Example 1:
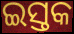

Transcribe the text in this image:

ଇସ୍ତକ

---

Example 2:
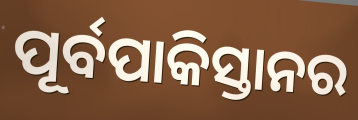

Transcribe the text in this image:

ପୂର୍ବପାକିସ୍ତାନର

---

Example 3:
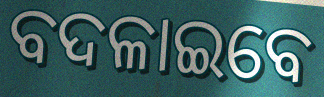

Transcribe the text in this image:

ବଦଳାଇବେ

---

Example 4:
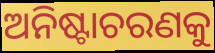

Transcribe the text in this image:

ଅନିଷ୍ଟାଚରଣକୁ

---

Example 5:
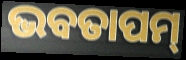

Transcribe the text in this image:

ଭବତାପମ୍